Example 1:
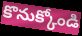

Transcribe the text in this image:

కొనుక్కోండి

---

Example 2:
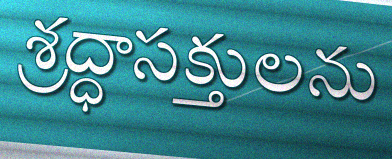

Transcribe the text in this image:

శ్రద్ధాసక్తులను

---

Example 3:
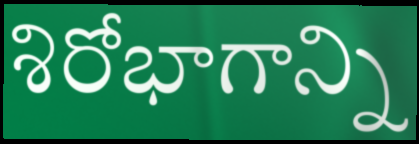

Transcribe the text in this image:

శిరోభాగాన్ని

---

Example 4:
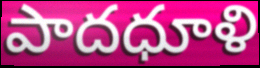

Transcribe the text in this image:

పాదధూళి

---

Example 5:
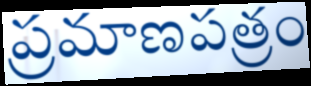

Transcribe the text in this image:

ప్రమాణపత్రం